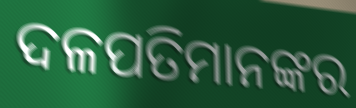
ଦଳପତିମାନଙ୍କର